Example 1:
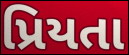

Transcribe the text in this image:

પ્રિયતા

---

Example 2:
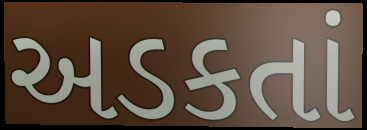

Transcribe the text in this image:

અડકતાં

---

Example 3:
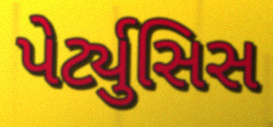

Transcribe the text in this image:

પેર્ટ્યુસિસ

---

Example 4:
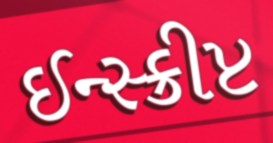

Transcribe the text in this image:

ઈન્સ્ક્રીપ્ટ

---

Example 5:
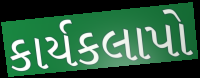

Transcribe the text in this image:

કાર્યકલાપો